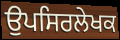
ਉਪਸਿਰਲੇਖਕ